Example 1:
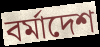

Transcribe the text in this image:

বর্মাদেশ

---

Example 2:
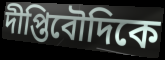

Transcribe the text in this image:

দীপ্তিবৌদিকে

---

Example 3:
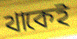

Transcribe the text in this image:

থাকেই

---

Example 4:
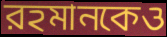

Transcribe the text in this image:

রহমানকেও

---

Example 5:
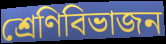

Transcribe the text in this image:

শ্রেণিবিভাজন